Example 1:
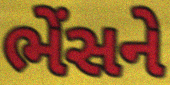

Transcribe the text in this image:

ભેંસને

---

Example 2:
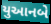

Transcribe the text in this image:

યુઆનબે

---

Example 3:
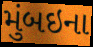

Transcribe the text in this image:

મુંબઇના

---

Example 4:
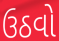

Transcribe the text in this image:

ઉઠવો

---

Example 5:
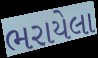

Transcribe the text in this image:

ભરાયેલા